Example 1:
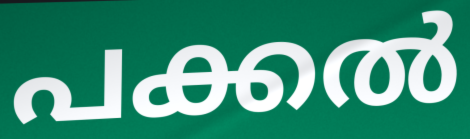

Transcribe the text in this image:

പക്കൽ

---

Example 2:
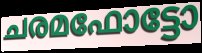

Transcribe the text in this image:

ചരമഫോട്ടോ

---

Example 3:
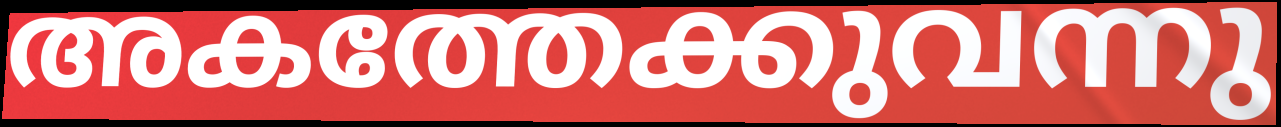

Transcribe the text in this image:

അകത്തേക്കുവന്നു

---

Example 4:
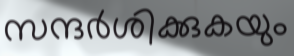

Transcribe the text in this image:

സന്ദർശിക്കുകയും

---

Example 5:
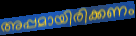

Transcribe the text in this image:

അപ്പമായിരിക്കണം